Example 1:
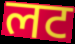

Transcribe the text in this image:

लट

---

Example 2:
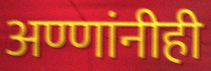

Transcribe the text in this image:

अण्णांनीही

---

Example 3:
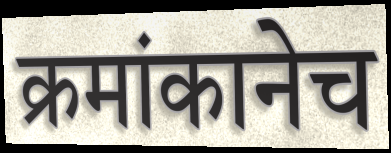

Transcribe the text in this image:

क्रमांकानेच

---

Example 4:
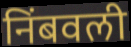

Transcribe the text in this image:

निंबवली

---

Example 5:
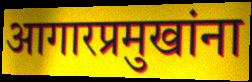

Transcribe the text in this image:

आगारप्रमुखांना